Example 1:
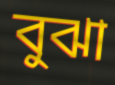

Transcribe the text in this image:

বুঝা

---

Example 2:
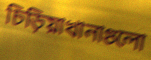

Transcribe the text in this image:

চিড়িয়াখানাগুলো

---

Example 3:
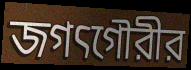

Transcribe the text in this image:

জগৎগৌরীর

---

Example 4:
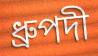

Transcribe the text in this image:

ধ্রুপদী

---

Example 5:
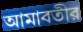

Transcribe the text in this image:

আমাবতীর